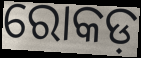
ରୋକଡ଼